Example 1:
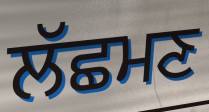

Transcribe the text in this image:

ਲੱਛਮਣ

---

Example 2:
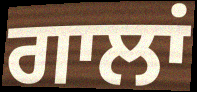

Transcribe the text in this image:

ਗਾਲਾਂ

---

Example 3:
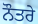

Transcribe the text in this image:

ਨੌਤਰੇ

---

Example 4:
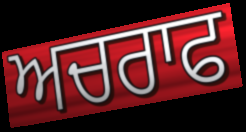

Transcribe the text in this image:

ਅਚਰਾਫ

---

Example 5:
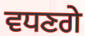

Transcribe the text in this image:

ਵਧਣਗੇ